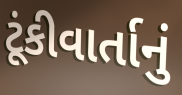
ટૂંકીવાર્તાનું